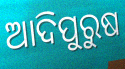
ଆଦିପୁରୁଷ